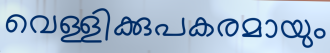
വെള്ളിക്കുപകരമായും